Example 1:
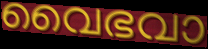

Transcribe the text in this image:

വൈഭവാ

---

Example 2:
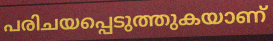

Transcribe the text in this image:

പരിചയപ്പെടുത്തുകയാണ്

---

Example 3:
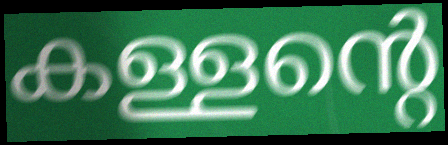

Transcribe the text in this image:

കള്ളന്റെ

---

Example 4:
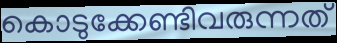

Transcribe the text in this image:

കൊടുക്കേണ്ടിവരുന്നത്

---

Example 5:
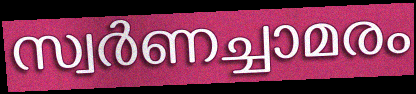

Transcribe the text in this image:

സ്വർണച്ചാമരം